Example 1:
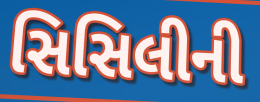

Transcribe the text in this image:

સિસિલીની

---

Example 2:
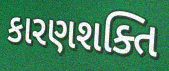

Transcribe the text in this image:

કારણશક્તિ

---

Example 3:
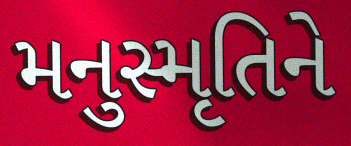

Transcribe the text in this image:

મનુસ્મૃતિને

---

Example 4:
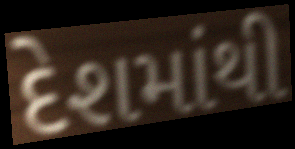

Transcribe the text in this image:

દેશમાંથી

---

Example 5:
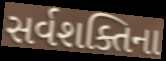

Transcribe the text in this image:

સર્વશક્તિના